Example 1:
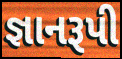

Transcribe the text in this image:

જ્ઞાનરૂપી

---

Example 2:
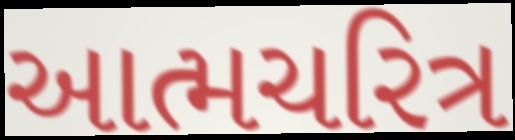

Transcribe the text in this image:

આત્મચરિત્ર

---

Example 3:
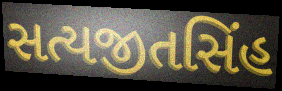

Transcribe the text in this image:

સત્યજીતસિંહ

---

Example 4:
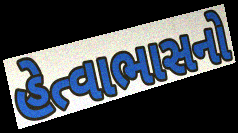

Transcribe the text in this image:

હેત્વાભાસનો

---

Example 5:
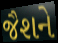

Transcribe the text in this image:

જૈશને